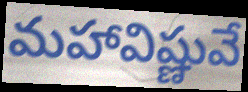
మహావిష్ణువే